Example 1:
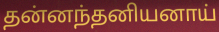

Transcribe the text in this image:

தன்னந்தனியனாய்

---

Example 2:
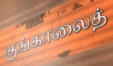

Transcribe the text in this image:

குங்காலைத்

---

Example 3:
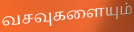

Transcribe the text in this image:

வசவுகளையும்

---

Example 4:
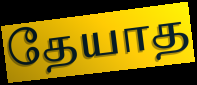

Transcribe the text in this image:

தேயாத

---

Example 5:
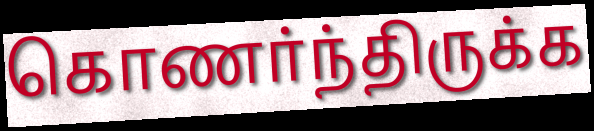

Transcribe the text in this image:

கொணர்ந்திருக்க